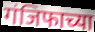
गंजिफाच्या